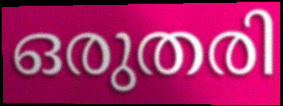
ഒരുതരി